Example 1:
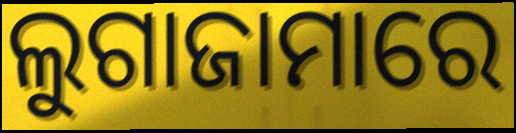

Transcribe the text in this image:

ଲୁଗାଜାମାରେ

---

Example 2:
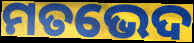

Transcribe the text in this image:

ମତଭେଦ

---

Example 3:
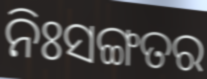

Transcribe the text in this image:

ନିଃସଙ୍ଗତର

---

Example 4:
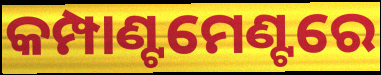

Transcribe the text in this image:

କମ୍ପାଣ୍ଟମେଣ୍ଟରେ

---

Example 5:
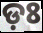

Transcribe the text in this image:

ଡ଼ଃ